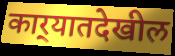
कार्यातदेखील